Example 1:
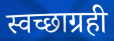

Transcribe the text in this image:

स्वच्छाग्रही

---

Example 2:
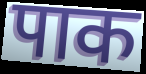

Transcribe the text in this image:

पाक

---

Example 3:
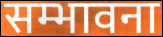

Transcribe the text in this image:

सम्भावना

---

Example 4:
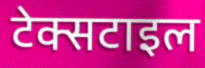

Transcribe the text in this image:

टेक्सटाइल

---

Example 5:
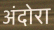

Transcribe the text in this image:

अंदोरा